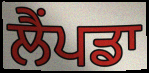
ਲੈਂਪਡਾ